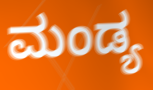
ಮಂಡ್ಯ